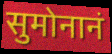
सुमोनानं